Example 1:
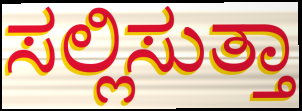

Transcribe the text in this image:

ಸಲ್ಲಿಸುತ್ತಾ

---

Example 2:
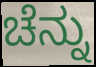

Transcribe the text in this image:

ಚೆನ್ನು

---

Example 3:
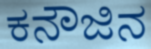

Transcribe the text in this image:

ಕನೌಜಿನ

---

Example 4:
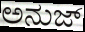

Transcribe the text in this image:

ಅನುಜ್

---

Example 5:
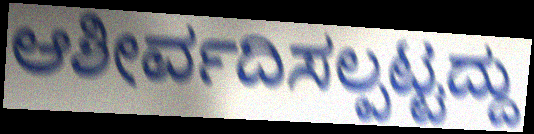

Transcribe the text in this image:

ಆಶೀರ್ವದಿಸಲ್ಪಟ್ಟದ್ದು